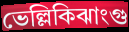
ভেল্লিকিঝাংগু